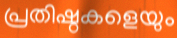
പ്രതിഷ്ഠകളെയും